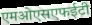
एमओएसएफईटी